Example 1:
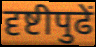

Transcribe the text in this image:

दृष्टीपुढें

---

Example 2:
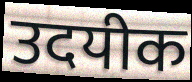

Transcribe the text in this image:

उदयीक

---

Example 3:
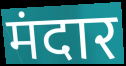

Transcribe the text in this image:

मंदार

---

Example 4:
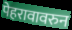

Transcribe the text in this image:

पेहरावावरुन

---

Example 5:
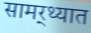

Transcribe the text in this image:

सामर्थ्यात